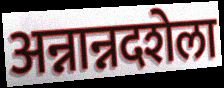
अन्नान्नदशेला